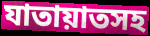
যাতায়াতসহ